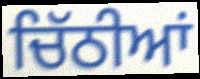
ਚਿੱਠੀਆਂ